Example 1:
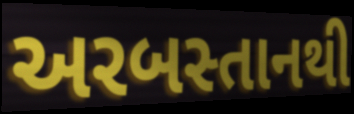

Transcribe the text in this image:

અરબસ્તાનથી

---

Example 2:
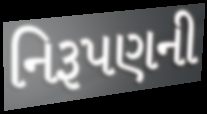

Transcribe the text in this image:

નિરૂપણની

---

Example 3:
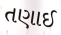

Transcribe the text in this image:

તણાઈ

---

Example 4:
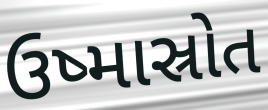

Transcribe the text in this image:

ઉષ્માસ્રોત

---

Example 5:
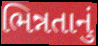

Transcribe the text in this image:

ભિન્નતાનું